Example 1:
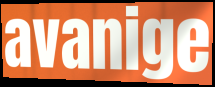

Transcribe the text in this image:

avanige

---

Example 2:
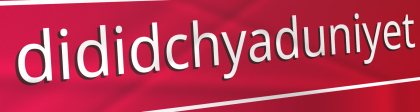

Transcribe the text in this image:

dididchyaduniyet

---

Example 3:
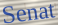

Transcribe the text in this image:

Senat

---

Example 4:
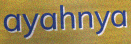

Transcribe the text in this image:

ayahnya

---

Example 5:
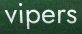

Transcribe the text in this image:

vipers